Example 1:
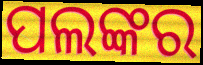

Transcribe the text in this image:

ପଲଙ୍କର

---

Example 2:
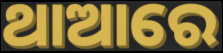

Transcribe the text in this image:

ଥାଆରେ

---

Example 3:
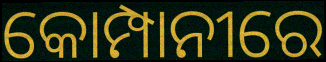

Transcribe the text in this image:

କୋମ୍ପାନୀରେ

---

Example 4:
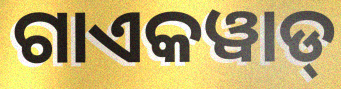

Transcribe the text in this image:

ଗାଏକୱାଡ୍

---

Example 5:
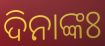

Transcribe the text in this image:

ଦିନାଙ୍କଃ